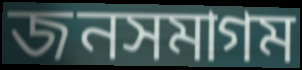
জনসমাগম